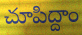
చూపిద్దాం